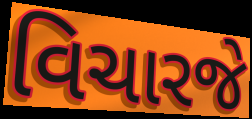
વિચારજે